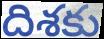
దిశకు